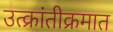
उत्क्रांतीक्रमात